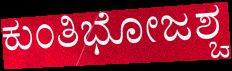
ಕುಂತಿಭೋಜಶ್ಚ